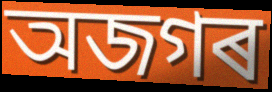
অজগৰ